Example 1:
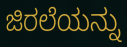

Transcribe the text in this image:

ಜಿರಲೆಯನ್ನು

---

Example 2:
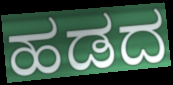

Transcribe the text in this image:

ಹಡದ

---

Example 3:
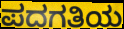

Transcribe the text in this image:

ಪದಗತಿಯ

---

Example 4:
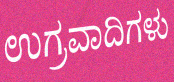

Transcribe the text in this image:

ಉಗ್ರವಾದಿಗಳು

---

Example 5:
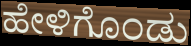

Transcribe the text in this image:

ಹೇಳಿಗೊಂಡು